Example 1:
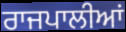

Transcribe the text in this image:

ਰਾਜਪਾਲੀਆਂ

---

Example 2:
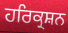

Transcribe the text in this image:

ਹਰਿਕ੍ਰਸ਼ਨ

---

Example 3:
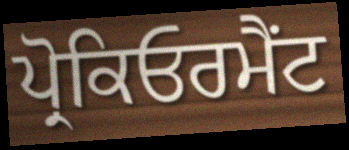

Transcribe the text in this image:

ਪ੍ਰੋਕਿਓਰਮੈਂਟ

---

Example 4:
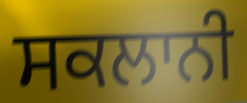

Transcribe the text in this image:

ਸਕਲਾਨੀ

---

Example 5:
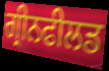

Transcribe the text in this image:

ਗ੍ਰੀਨਫੀਲਡ